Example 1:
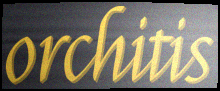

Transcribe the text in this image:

orchitis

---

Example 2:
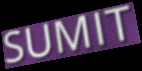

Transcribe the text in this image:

SUMIT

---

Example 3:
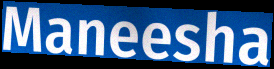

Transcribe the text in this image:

Maneesha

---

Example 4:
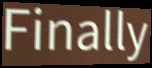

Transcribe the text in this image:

Finally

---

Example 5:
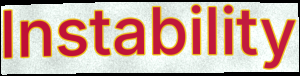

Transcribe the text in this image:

Instability